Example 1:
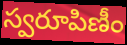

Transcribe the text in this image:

స్వరూపిణీం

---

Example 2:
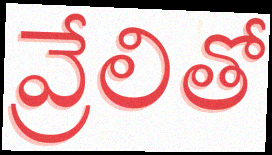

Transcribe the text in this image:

వ్రేలితో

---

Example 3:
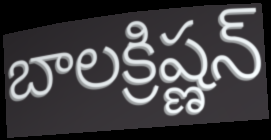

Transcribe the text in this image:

బాలక్రిష్ణన్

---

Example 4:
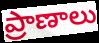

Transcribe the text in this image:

ప్రాణాలు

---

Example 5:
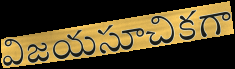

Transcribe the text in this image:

విజయసూచికగా